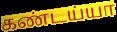
கண்டய்யா